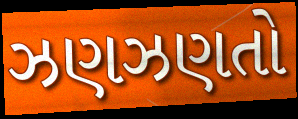
ઝણઝણતો